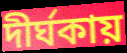
দীর্ঘকায়